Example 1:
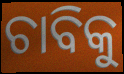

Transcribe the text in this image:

ଚାବିକୁ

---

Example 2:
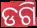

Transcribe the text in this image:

ଡଗି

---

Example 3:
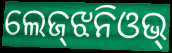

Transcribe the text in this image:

ଲେଜ୍‌ଝନିଓଭ୍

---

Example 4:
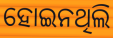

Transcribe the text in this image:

ହୋଇନଥିଲି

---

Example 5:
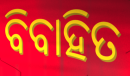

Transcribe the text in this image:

ବିବାହିତ